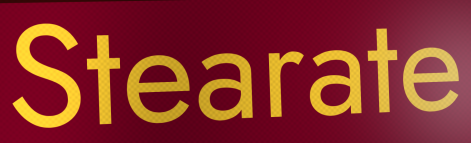
Stearate